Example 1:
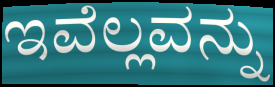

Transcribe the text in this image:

ಇವೆಲ್ಲವನ್ನು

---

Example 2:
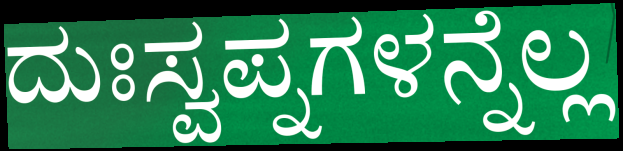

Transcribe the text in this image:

ದುಃಸ್ವಪ್ನಗಳನ್ನೆಲ್ಲ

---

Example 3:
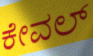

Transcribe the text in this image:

ಕೇವಲ್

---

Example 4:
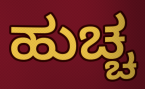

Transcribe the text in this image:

ಹುಚ್ಚ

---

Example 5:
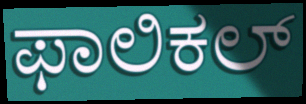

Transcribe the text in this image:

ಫಾಲಿಕಲ್